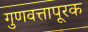
गुणवत्तापूरक